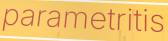
parametritis